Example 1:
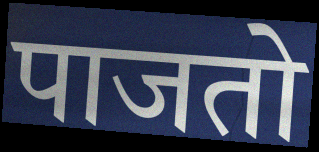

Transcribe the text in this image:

पाजतो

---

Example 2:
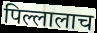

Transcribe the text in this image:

पिल्लालाच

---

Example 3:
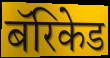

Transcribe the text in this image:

बॅरिकेड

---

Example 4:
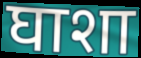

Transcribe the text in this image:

घाशा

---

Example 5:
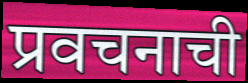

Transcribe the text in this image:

प्रवचनाची